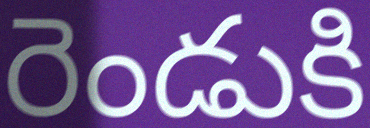
రెండుకి